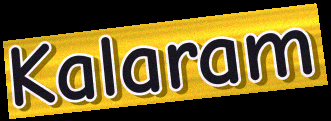
Kalaram